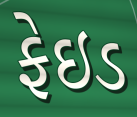
ફેઇડ